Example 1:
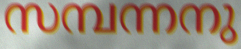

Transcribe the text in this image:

സമ്പന്നനു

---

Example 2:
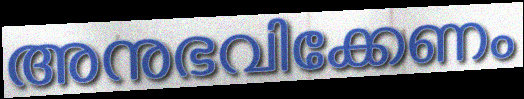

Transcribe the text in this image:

അനുഭവിക്കേണം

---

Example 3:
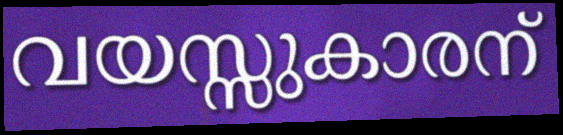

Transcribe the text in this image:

വയസ്സുകാരന്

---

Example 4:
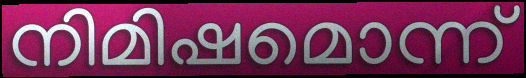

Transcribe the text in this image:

നിമിഷമൊന്ന്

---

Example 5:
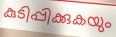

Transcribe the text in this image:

കുടിപ്പിക്കുകയും